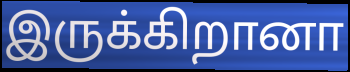
இருக்கிறானா